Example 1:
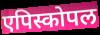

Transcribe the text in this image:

एपिस्कोपल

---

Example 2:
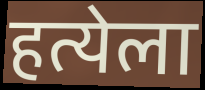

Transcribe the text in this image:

हत्येला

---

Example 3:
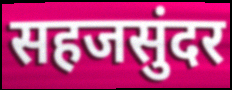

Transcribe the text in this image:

सहजसुंदर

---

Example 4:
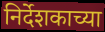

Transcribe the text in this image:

निर्देशकाच्या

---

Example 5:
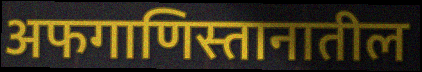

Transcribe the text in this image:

अफगाणिस्तानातील